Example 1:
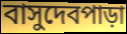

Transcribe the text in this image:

বাসুদেবপাড়া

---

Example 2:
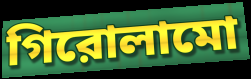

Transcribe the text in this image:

গিরোলামো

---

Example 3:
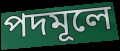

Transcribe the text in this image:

পদমূলে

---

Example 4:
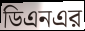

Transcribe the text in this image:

ডিএনএর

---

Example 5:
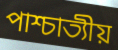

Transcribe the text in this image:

পাশ্চাত্যীয়